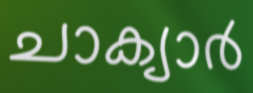
ചാക്യാർ